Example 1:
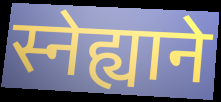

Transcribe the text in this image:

स्नेह्याने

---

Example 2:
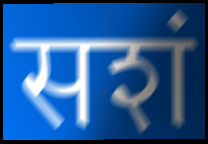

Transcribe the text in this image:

सशं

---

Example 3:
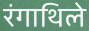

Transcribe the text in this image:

रंगाथिले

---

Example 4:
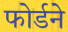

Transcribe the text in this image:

फोर्डने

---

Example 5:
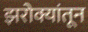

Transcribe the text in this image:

झरोक्यांतून